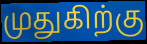
முதுகிற்கு